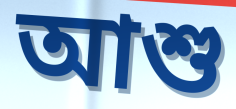
আশু